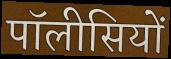
पॉलीसियों